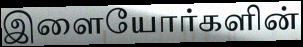
இளையோர்களின்